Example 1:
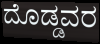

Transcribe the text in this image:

ದೊಡ್ಡವರ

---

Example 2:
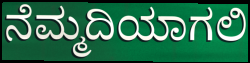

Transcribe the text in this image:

ನೆಮ್ಮದಿಯಾಗಲಿ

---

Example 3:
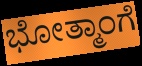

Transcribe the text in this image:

ಭೋತ್ಮಾಂಗೆ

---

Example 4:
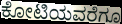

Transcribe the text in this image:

ಕೋಟಿಯವರೆಗೂ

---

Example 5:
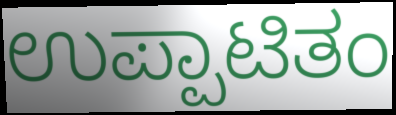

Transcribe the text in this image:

ಉಪ್ಪಾಟಿತಂ